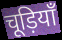
चूड़ियाँ